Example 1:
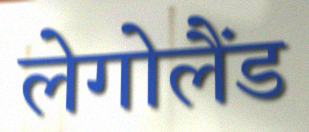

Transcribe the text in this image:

लेगोलैंड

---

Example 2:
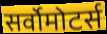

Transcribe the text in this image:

सर्वोमोटर्स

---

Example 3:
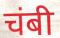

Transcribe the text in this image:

चंबी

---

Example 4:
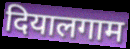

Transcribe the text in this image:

दियालगाम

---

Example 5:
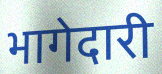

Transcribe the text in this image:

भागेदारी